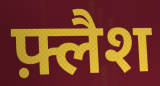
फ़्लैश